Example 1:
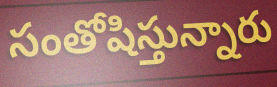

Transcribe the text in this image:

సంతోషిస్తున్నారు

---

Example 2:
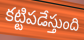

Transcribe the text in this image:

కట్టిపడేస్తుంది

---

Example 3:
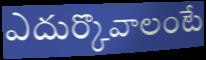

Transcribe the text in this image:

ఎదుర్కొవాలంటే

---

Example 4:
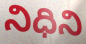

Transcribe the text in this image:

నిధిని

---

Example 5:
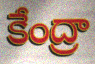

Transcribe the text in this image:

కేంద్రా